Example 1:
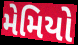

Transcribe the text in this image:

મેમિયો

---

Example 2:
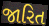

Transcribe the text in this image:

જારિત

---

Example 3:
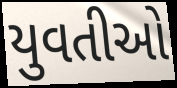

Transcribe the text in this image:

યુવતીઓ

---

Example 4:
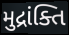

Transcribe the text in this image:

મુદ્રાંક્તિ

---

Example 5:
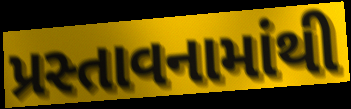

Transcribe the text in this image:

પ્રસ્તાવનામાંથી